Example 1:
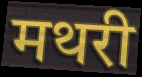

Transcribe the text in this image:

मथरी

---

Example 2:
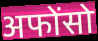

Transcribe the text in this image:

अफोंसो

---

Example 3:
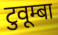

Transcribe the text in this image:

टुवूम्बा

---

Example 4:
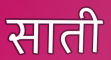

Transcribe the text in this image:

साती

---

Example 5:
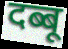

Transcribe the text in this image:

दब्बू